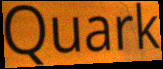
Quark